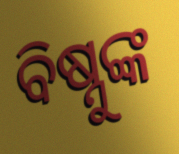
ବିଷ୍ନୁଙ୍କ